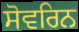
ਸੋਵਰਿਨ